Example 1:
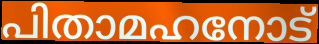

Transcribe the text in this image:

പിതാമഹനോട്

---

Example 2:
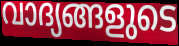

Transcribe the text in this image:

വാദ്യങ്ങളുടെ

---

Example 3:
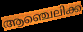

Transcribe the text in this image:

ആഞ്ചെലിക്ക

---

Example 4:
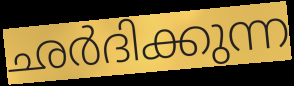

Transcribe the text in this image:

ഛർദിക്കുന്ന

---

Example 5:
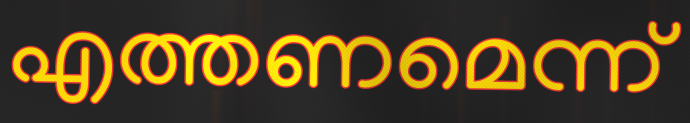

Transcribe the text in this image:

എത്തണമെന്ന്